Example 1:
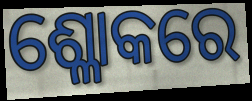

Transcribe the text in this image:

ଶ୍ଳୋକରେ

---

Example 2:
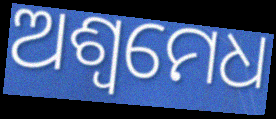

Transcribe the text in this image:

ଅଶ୍ଵମେଧ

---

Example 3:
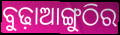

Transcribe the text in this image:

ବୁଢ଼ାଆଙ୍ଗୁଠିର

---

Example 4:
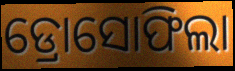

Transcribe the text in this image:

ଡ୍ରୋସୋଫିଲା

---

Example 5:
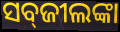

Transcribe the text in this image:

ସବ୍‌ଜୀଲଙ୍କା